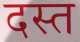
दस्त